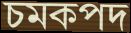
চমকপদ